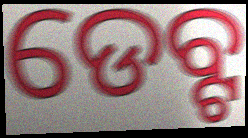
ଡେବ୍ଟ